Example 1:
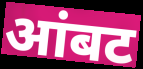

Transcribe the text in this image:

आंबट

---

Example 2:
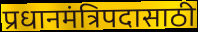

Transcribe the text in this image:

प्रधानमंत्रिपदासाठी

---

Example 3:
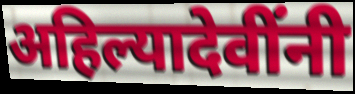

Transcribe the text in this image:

अहिल्यादेवींनी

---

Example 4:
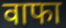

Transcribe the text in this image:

वाफा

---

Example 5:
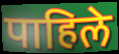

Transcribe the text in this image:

पाहिले